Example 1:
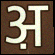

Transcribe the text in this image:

अ़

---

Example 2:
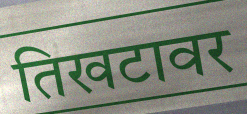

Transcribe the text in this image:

तिखटावर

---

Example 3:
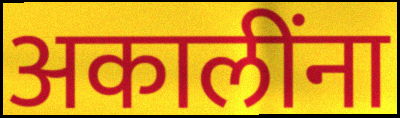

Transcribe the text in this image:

अकालींना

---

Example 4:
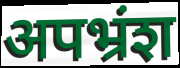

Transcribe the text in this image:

अपभ्रंश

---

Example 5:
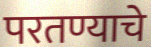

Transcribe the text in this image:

परतण्याचे